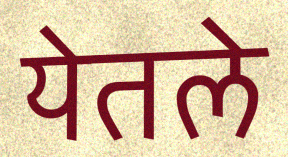
येतले